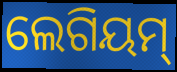
ଲେଗିୟମ୍